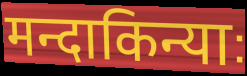
मन्दाकिन्याः